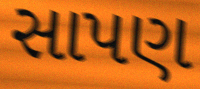
સાપણ